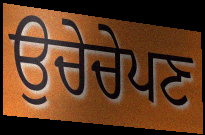
ਉਚੇਚੇਪਣ